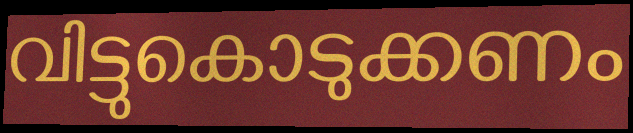
വിട്ടുകൊടുക്കണം